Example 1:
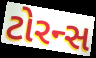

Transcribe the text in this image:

ટોરન્સ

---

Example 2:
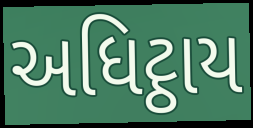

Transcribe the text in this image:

અધિટ્ઠાય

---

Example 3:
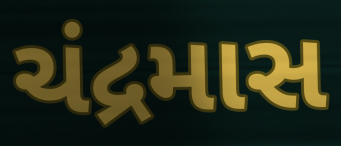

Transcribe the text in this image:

ચંદ્રમાસ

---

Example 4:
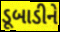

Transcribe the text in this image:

ડૂબાડીને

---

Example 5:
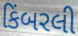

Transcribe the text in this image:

કિંબરલી